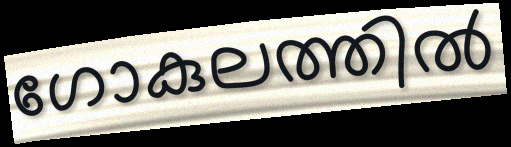
ഗോകുലത്തിൽ